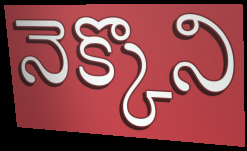
నెక్కొని